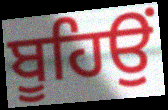
ਬੂਹਿਉਂ